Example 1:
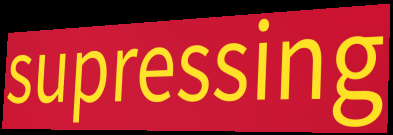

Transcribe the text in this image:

supressing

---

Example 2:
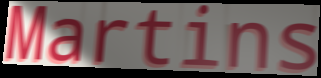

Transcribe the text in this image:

Martins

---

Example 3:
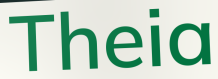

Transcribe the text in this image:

Theia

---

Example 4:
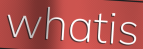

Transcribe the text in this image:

whatis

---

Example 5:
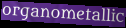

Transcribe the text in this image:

organometallic